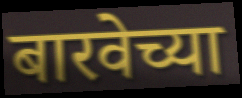
बारवेच्या